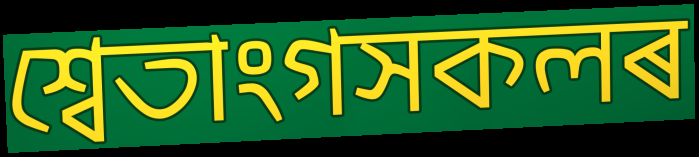
শ্বেতাংগসকলৰ